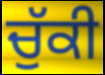
ਚੁੱਕੀ